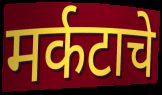
मर्कटाचे